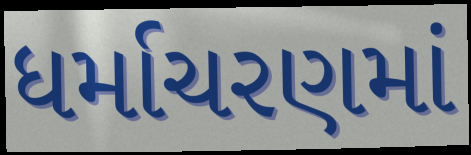
ધર્માચરણમાં